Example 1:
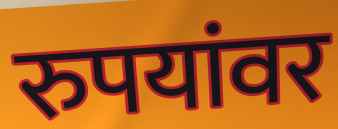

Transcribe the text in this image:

रुपयांवर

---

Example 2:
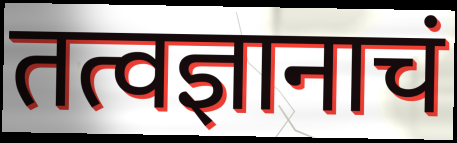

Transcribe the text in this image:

तत्वज्ञानाचं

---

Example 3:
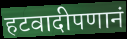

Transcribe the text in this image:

हटवादीपणानं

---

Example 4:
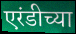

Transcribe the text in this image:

एरंडीच्या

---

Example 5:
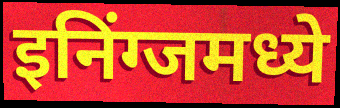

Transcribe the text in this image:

इनिंग्जमध्ये